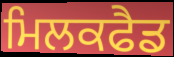
ਮਿਲਕਫੈਡ